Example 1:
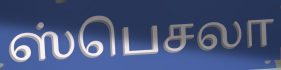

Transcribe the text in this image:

ஸ்பெசலா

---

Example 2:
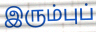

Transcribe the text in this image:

இரும்புப்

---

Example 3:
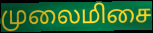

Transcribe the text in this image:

முலைமிசை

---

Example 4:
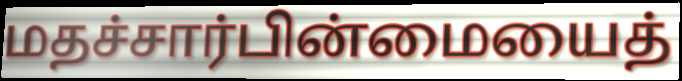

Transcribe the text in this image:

மதச்சார்பின்மையைத்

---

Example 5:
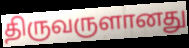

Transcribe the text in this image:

திருவருளானது